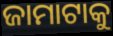
ଜାମାଟାକୁ